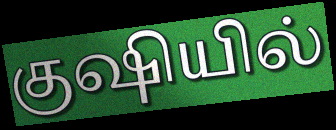
குஷியில்